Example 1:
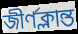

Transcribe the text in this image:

জীর্ণক্লান্ত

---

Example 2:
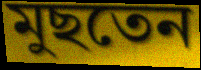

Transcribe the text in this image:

মুছতেন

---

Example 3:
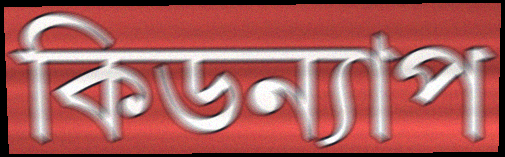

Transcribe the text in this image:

কিডন্যাপ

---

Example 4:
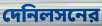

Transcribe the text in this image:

দেনিলসনের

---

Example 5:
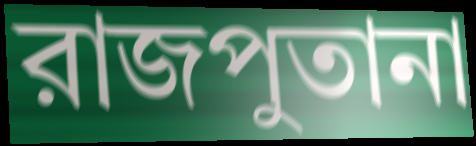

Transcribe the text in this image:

রাজপুতানা